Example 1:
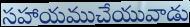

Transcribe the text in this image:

సహాయముచేయువాడు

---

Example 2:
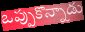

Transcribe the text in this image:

ఒప్పుకొన్నాడు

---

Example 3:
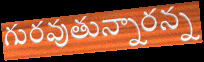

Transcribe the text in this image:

గురవుతున్నారన్న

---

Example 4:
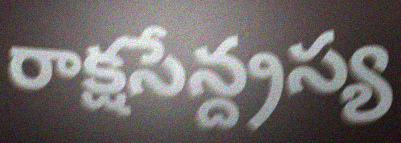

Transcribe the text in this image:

రాక్షసేన్ద్రస్య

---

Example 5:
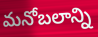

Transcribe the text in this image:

మనోబలాన్ని